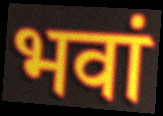
भवां